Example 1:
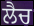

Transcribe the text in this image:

ਲੈਚ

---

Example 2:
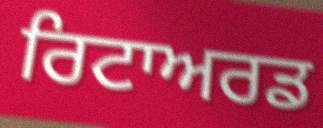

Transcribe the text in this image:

ਰਿਟਾਅਰਡ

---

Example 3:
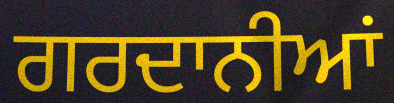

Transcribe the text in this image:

ਗਰਦਾਨੀਆਂ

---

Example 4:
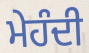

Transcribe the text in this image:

ਮੇਹੰਦੀ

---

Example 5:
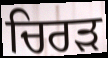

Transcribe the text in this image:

ਚਿਰੜ